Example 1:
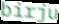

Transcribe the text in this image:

birju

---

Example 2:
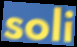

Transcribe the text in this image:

soli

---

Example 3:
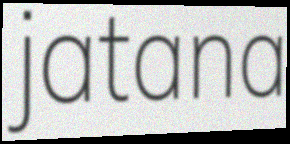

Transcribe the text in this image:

jatana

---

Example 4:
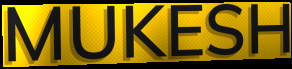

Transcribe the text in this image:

MUKESH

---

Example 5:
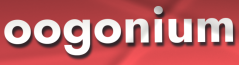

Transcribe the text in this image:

oogonium